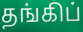
தங்கிப்